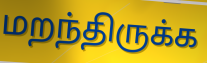
மறந்திருக்க